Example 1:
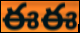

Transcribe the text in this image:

ఈఈ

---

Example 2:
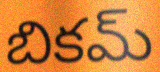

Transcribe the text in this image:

బికమ్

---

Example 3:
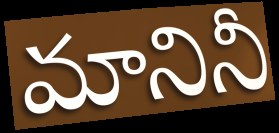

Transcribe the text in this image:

మానినీ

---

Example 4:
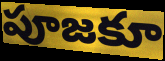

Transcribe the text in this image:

పూజకూ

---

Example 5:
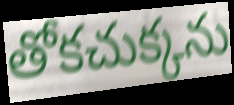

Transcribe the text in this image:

తోకచుక్కను